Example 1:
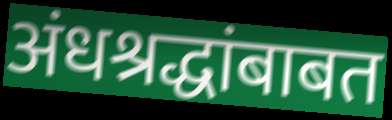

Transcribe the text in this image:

अंधश्रद्धांबाबत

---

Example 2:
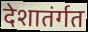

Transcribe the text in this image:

देशातंर्गत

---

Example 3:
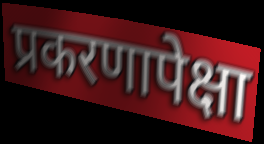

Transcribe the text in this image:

प्रकरणापेक्षा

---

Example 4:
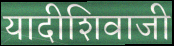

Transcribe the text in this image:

यादीशिवाजी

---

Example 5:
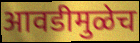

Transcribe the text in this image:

आवडीमुळेच